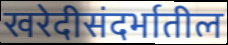
खरेदीसंदर्भातील